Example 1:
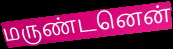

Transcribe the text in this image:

மருண்டனென்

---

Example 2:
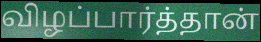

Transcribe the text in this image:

விழப்பார்த்தான்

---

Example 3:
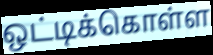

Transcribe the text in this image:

ஒட்டிக்கொள்ள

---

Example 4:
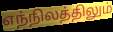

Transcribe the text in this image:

எந்நிலத்திலும்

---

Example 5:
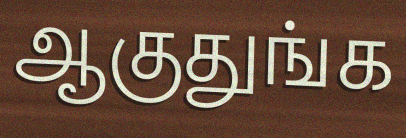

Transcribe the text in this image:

ஆகுதுங்க